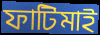
ফাটিমাই